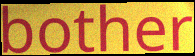
bother